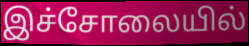
இச்சோலையில்